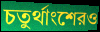
চতুর্থাংশেরও